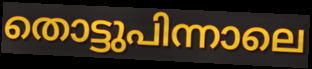
തൊട്ടുപിന്നാലെ